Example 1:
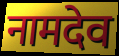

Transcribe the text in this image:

नामदेव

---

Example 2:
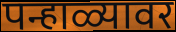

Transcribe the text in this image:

पन्हाळ्यावर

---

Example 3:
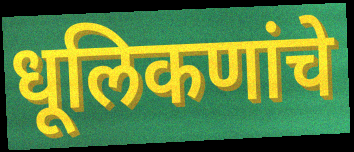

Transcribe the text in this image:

धूलिकणांचे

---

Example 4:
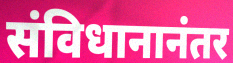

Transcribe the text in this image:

संविधानानंतर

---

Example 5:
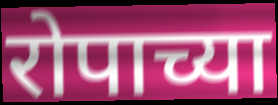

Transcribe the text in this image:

रोपाच्या